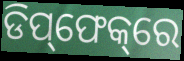
ଡିପ୍‌ଫେକ୍‌ରେ